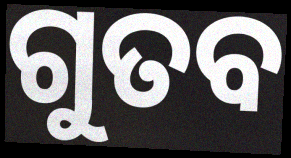
ଗୁତବ